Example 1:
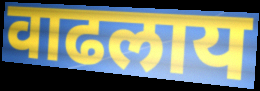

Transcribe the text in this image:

वाढलाय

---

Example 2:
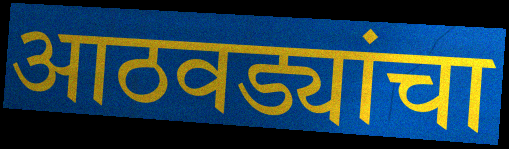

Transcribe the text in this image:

आठवड्यांचा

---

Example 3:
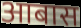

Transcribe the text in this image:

आबास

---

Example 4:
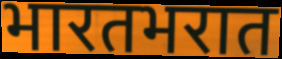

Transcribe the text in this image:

भारतभरात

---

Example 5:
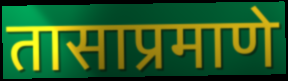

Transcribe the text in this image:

तासाप्रमाणे